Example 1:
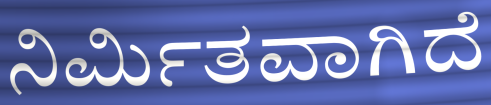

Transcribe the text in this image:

ನಿರ್ಮಿತವಾಗಿದೆ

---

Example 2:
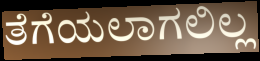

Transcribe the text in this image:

ತೆಗೆಯಲಾಗಲಿಲ್ಲ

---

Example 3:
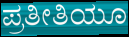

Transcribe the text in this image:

ಪ್ರತೀತಿಯೂ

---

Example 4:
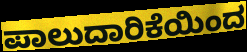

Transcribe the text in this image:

ಪಾಲುದಾರಿಕೆಯಿಂದ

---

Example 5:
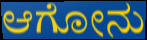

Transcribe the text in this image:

ಆಗೋನು